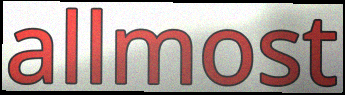
allmost